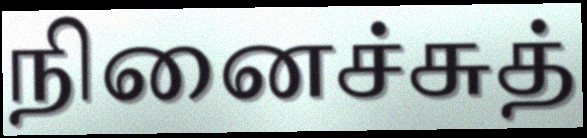
நினைச்சுத்